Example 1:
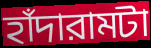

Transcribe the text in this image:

হাঁদারামটা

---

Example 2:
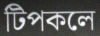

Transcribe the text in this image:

টিপকলে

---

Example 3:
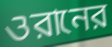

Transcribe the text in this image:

ওরানের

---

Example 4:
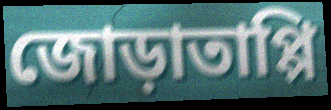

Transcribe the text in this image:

জোড়াতাপ্পি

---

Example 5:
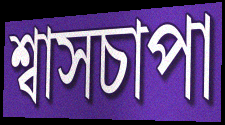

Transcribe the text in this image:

শ্বাসচাপা